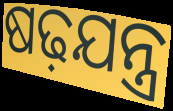
ଷଢ଼ଯନ୍ତ୍ର